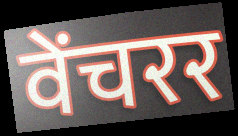
वेंचरर